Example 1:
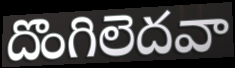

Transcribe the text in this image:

దొంగిలెదవా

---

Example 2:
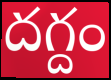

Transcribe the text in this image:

దగ్దం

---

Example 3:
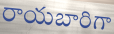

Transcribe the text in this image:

రాయబారిగా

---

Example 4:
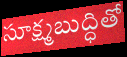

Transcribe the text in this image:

సూక్ష్మబుద్ధితో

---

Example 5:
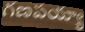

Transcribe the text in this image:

గణపయ్యా